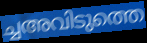
ച്ചഅവിടുത്തെ